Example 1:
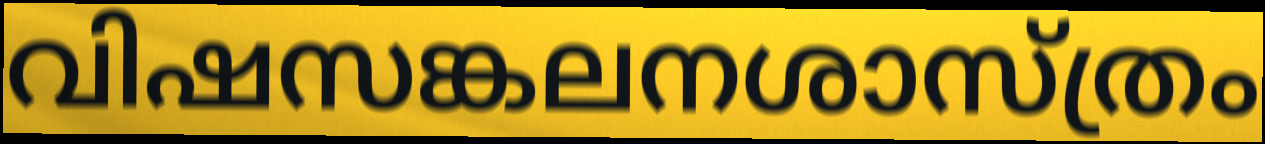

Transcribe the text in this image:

വിഷസങ്കലനശാസ്ത്രം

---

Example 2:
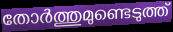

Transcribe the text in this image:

തോർത്തുമുണ്ടെടുത്ത്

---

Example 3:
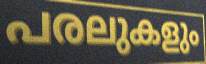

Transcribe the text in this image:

പരലുകളും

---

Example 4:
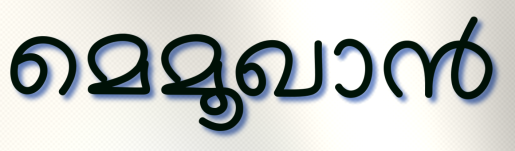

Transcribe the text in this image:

മെമൂഖാൻ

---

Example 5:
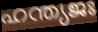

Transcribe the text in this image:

ഹന്ത്യജഃ